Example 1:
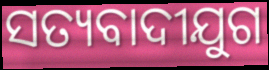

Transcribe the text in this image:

ସତ୍ୟବାଦୀଯୁଗ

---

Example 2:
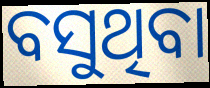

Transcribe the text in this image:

ବସୁଥିବା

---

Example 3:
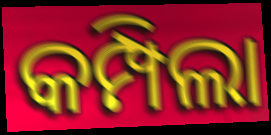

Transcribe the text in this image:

କମ୍ପିଲା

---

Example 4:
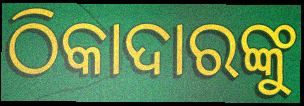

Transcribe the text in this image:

ଠିକାଦାରଙ୍କୁ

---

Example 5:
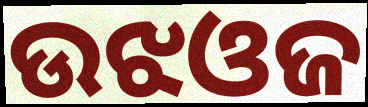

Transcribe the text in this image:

ଉଝଓଜ